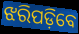
ଝରିପଡ଼ିବେ